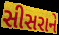
સીસરાને